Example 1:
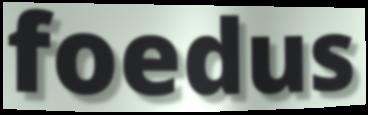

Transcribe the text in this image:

foedus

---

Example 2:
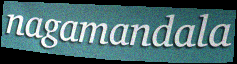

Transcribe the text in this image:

nagamandala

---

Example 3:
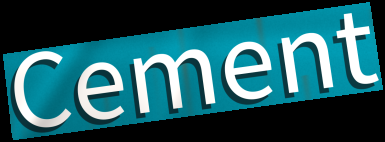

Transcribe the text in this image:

Cement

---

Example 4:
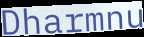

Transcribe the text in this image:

Dharmnu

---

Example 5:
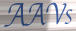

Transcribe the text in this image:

AAVs